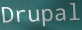
Drupal